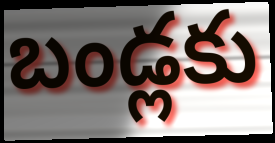
బండ్లకు